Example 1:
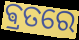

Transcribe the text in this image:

ଵ୍ରତରେ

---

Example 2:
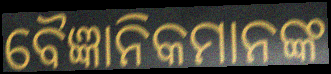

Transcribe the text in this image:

ବୈଜ୍ଞାନିକମାନଙ୍କ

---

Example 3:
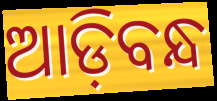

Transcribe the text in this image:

ଆଡ଼ିବନ୍ଧ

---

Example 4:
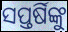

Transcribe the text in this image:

ସପ୍ତର୍ଷିଙ୍କୁ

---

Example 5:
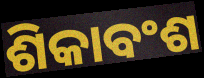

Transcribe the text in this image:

ଶିକାବଂଶ